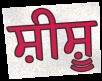
ਸ਼ੀਸ਼ੂ